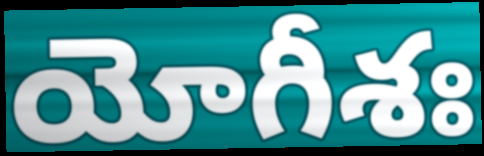
యోగీశః